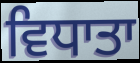
ਵਿਧਾਤਾ